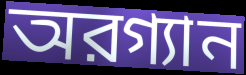
অরগ্যান